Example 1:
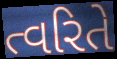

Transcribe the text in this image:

ત્વરિતે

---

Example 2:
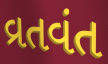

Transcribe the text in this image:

વ્રતવંત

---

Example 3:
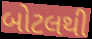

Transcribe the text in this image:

બોટલથી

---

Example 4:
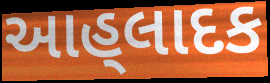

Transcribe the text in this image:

આહ્‌લાદક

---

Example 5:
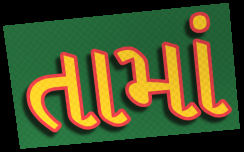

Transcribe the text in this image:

તામાં